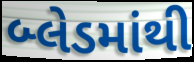
બ્લેડમાંથી